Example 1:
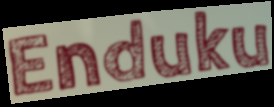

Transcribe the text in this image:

Enduku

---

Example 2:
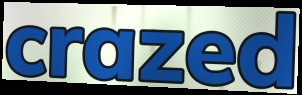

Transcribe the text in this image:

crazed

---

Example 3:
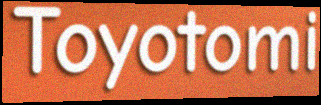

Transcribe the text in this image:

Toyotomi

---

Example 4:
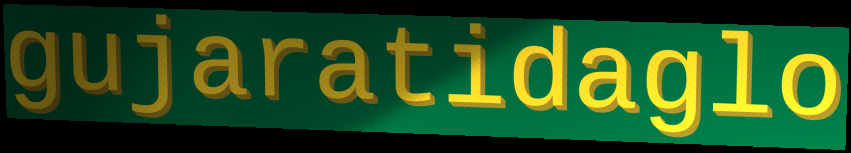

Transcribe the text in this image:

gujaratidaglo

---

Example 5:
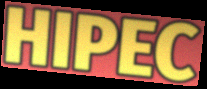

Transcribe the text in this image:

HIPEC